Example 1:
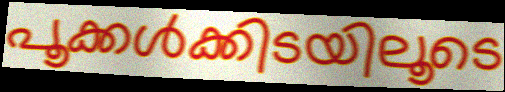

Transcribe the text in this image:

പൂക്കൾക്കിടയിലൂടെ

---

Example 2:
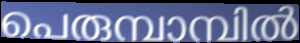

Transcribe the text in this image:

പെരുമ്പാമ്പിൽ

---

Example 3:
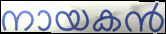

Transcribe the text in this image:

നായകൻ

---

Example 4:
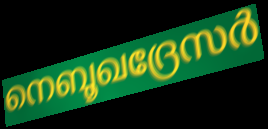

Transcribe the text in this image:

നെബൂഖദ്രേസർ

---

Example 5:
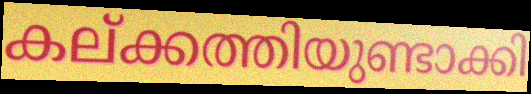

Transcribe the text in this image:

കല്ക്കത്തിയുണ്ടാക്കി